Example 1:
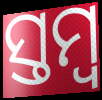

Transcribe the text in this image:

ସ୍ତମ୍ଵ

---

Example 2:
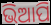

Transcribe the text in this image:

ଭିଆପି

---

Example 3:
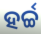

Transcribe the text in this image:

ହର୍ଚ୍ଚ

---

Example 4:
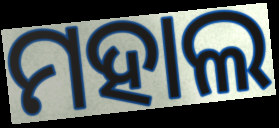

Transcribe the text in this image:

ମହାଲ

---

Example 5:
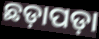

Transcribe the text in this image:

ଛଡ଼ାପଡ଼ା